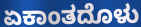
ಏಕಾಂತದೊಳು